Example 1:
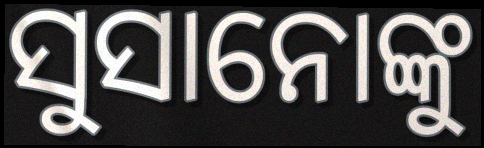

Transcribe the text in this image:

ସୁସାନୋଙ୍କୁ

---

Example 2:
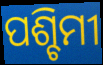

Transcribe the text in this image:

ପଶ୍ଚିମୀ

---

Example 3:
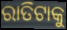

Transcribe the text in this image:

ରାତିଟାକୁ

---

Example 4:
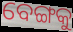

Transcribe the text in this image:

ବେଙ୍ଗକୁ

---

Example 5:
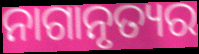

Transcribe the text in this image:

ନାଗାନୃତ୍ୟର